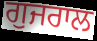
ਗੁਜਰਾਲ